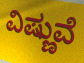
ವಿಷ್ಣುವೆ